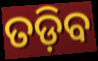
ତଡ଼ିବ